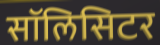
सॉलिसिटर